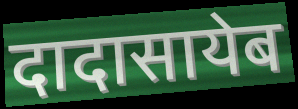
दादासायेब